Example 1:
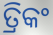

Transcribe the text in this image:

ତ୍ରିକଂ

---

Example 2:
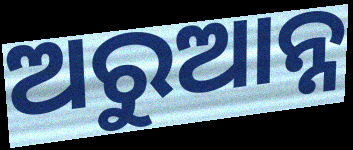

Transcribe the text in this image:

ଅରୁଆନ୍ନ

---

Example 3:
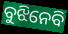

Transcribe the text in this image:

ବୁଝିନେବି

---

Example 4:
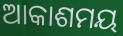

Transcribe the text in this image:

ଆକାଶମୟ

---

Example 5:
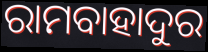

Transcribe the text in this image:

ରାମବାହାଦୁର